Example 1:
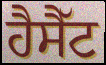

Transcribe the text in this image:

ਹੈਸੈੱਟ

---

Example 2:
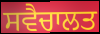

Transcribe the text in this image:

ਸਵੈਚਾਲਤ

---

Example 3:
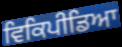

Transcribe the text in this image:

ਵਿਕਿਪੀਡਿਆ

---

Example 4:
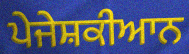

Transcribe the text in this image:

ਪੇਜੇਸ਼ਕੀਆਨ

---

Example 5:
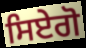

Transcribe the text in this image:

ਸਿਏਗੋ